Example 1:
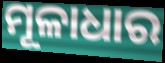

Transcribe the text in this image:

ମୂଳାଧାର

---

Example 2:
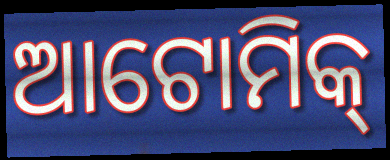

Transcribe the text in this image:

ଆଟୋମିକ୍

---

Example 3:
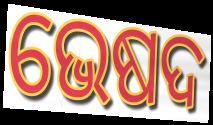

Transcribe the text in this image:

ଭେଷଦ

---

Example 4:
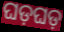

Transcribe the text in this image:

ଘଡ଼ଘଡ଼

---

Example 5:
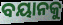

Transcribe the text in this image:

ବୟାନକୁ